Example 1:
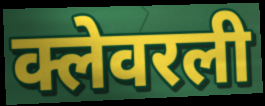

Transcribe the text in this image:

क्लेवरली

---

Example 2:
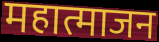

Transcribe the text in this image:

महात्माजन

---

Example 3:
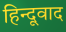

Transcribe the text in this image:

हिन्दूवाद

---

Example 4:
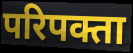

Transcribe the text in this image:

परिपक्ता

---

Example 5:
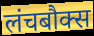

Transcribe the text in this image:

लंचबौक्स